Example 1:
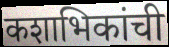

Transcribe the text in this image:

कशाभिकांची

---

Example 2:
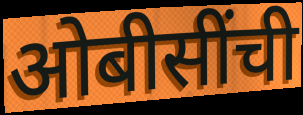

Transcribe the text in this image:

ओबीसींची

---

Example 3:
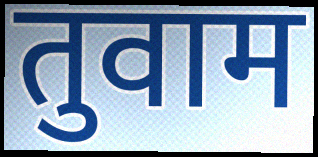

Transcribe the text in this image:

तुवाम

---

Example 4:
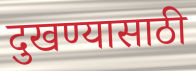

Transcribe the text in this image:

दुखण्यासाठी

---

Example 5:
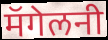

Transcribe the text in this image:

मॅगेलनी